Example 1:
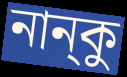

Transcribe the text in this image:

নান্‌কু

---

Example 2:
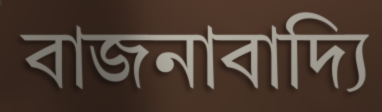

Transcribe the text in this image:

বাজনাবাদ্যি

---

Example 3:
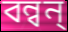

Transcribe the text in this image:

বন্বন্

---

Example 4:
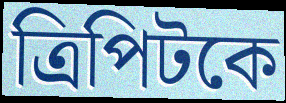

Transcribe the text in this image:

ত্রিপিটকে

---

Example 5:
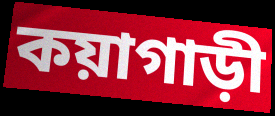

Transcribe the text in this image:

কয়াগাড়ী